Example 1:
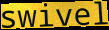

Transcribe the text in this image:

swivel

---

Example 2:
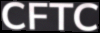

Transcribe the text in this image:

CFTC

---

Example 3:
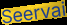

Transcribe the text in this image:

Seervai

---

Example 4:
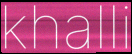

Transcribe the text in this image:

khalli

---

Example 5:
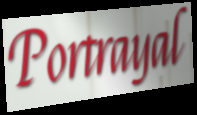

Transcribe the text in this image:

Portrayal